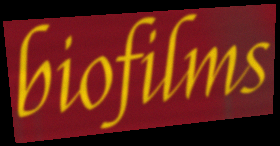
biofilms